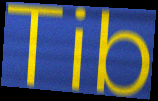
Tib